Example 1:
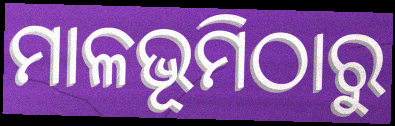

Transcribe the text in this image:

ମାଳଭୂମିଠାରୁ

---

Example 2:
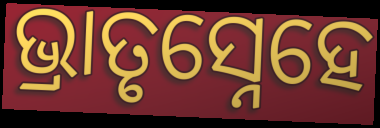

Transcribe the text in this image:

ଭ୍ରାତୃସ୍ନେହେ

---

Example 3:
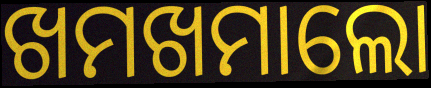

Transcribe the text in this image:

ଖମଖମାଲୋ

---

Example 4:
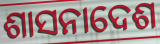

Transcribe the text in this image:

ଶାସନାଦେଶ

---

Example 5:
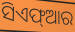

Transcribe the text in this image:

ସିଏଫ୍ଆର